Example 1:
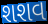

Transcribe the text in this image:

શશવ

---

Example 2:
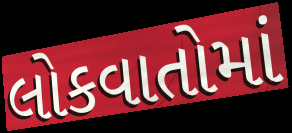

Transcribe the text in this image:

લોકવાતોમાં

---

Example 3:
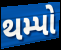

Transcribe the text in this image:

થમ્પો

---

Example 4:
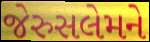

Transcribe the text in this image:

જેરુસલેમને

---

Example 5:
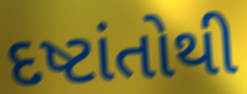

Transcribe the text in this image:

દષ્ટાંતોથી